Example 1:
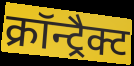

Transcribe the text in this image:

क्रॉन्ट्रैक्ट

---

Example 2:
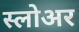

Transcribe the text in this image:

स्लोअर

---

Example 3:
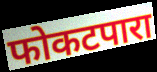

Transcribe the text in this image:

फोकटपारा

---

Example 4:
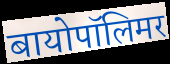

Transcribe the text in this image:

बायोपॉलिमर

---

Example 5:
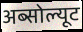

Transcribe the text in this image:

अब्सोल्यूट